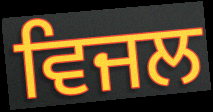
ਵਿਜਲ